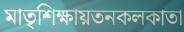
মাতৃশিক্ষায়তনকলকাতা